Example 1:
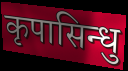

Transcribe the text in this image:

कृपासिन्धु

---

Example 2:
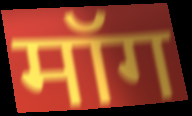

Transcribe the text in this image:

मॉग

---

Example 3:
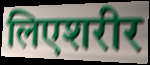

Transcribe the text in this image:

लिएशरीर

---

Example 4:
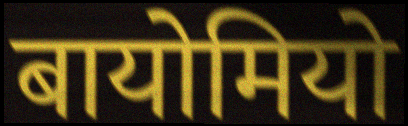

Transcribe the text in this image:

बायोमियो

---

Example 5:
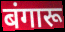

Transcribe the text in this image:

बंगारू